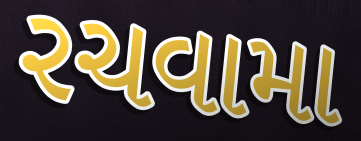
રચવામા